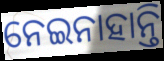
ନେଇନାହାନ୍ତି